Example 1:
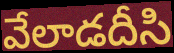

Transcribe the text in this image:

వేలాడదీసి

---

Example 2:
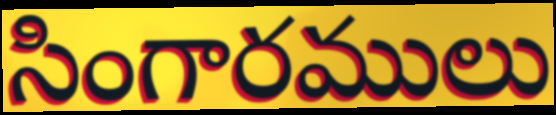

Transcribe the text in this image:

సింగారములు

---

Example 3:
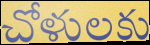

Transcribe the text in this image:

చోళులకు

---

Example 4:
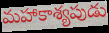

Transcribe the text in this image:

మహాకాశ్యపుడు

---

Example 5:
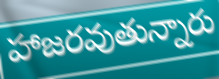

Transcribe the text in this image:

హాజరవుతున్నారు